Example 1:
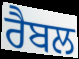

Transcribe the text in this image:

ਰੈਬਲ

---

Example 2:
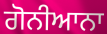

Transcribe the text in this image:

ਗੋਨੀਆਨਾ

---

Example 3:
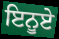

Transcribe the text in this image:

ਇਨੂਏ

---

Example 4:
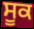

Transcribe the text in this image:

ਸੂਕ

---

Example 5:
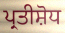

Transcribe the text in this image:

ਪ੍ਰਤੀਸ਼ੋਧ